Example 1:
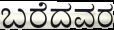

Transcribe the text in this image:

ಬರೆದವರ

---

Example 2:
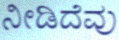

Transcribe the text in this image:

ನೀಡಿದೆವು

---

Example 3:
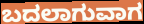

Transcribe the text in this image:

ಬದಲಾಗುವಾಗ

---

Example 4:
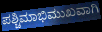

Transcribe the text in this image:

ಪಶ್ಚಿಮಾಭಿಮುಖವಾಗಿ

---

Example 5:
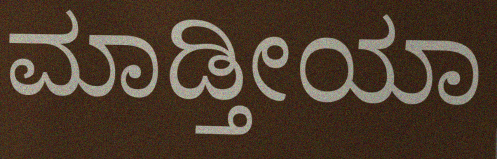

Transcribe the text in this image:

ಮಾಡ್ತೀಯಾ